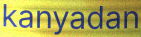
kanyadan